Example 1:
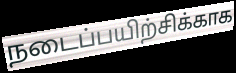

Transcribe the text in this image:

நடைப்பயிற்சிக்காக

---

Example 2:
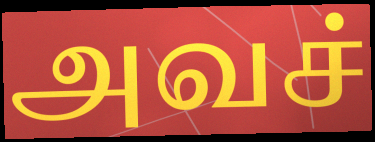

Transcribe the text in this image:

அவச்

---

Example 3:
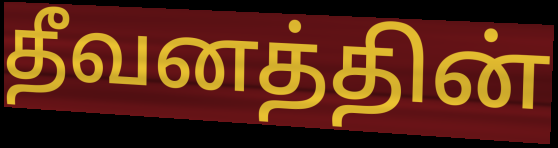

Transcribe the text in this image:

தீவனத்தின்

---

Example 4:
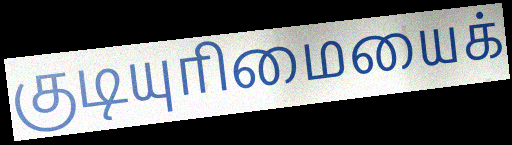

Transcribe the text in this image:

குடியுரிமையைக்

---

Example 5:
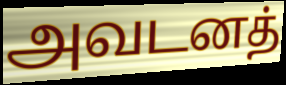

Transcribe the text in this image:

அவடனத்